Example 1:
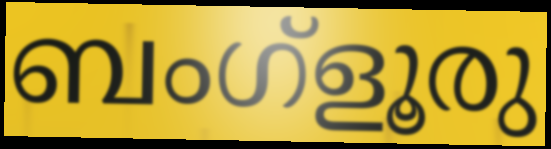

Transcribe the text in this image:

ബംഗ്ളൂരു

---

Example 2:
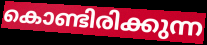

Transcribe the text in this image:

കൊണ്ടിരിക്കുന്ന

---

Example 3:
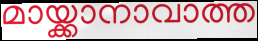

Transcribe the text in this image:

മായ്ക്കാനാവാത്ത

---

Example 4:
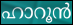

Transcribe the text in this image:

ഹാറൂൻ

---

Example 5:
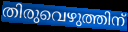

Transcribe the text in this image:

തിരുവെഴുത്തിന്